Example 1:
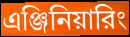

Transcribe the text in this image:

এঞ্জিনিয়ারিং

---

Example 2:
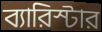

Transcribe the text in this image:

ব্যারিস্টার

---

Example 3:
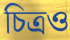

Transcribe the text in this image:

চিত্রও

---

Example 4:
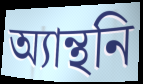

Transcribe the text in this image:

অ্যান্থনি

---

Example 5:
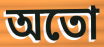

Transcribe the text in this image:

অতো